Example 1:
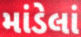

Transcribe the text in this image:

માંડેલાં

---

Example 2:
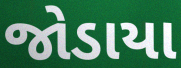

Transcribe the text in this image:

જોડાયા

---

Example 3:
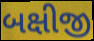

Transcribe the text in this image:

બક્ષીજી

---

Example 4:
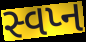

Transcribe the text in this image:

સ્વપ્ન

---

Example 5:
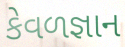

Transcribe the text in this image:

કેવળજ્ઞાન